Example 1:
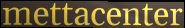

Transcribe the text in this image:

mettacenter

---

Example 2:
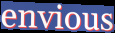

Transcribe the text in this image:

envious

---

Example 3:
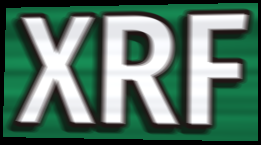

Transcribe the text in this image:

XRF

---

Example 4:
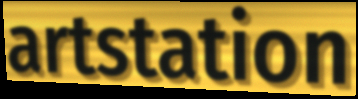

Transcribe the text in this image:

artstation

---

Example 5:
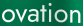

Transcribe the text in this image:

ovation